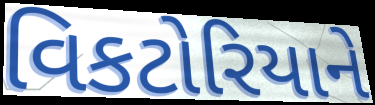
વિકટોરિયાને